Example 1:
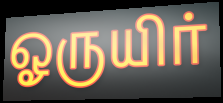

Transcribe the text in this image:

ஓருயிர்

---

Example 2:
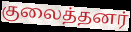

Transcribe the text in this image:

குலைத்தனர்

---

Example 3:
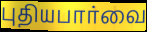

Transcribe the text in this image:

புதியபார்வை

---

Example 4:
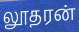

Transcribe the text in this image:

லூதரன்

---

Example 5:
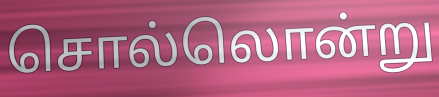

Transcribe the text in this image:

சொல்லொன்று